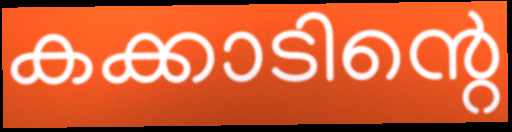
കക്കാടിന്റെ